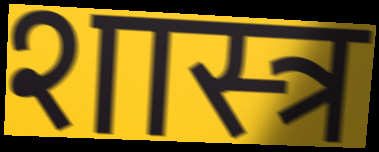
शास्त्र